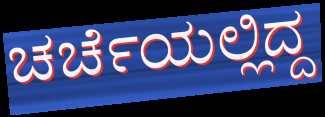
ಚರ್ಚೆಯಲ್ಲಿದ್ದ